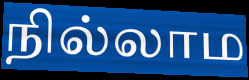
நில்லாம